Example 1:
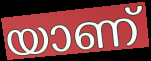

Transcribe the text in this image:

യാണ്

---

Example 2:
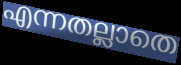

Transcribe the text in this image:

എന്നതല്ലാതെ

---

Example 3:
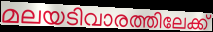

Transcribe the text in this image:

മലയടിവാരത്തിലേക്ക്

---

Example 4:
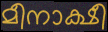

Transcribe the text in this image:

മീനാക്ഷീ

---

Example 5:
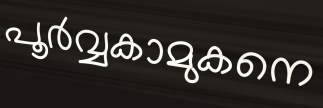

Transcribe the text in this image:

പൂർവ്വകാമുകനെ